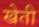
खेती